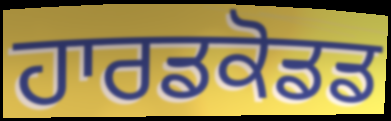
ਹਾਰਡਕੋਡਡ